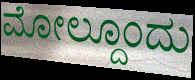
ಮೋಲ್ದೂಂದು